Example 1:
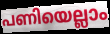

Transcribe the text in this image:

പണിയെല്ലാം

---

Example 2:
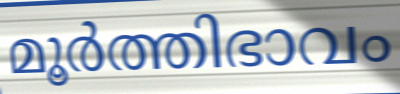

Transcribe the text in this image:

മൂർത്തിഭാവം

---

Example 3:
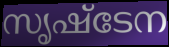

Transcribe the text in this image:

സൃഷ്ടേന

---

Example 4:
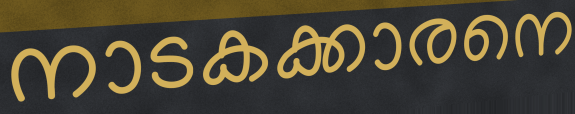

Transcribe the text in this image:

നാടകക്കാരനെ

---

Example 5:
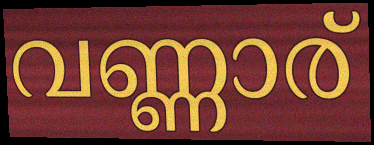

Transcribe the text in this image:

വണ്ണാര്